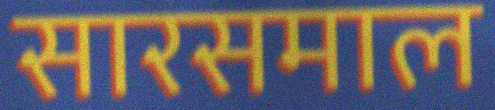
सारसमाल